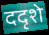
ददृशे